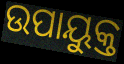
ଉପାୟୁକ୍ତ